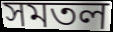
সমতল